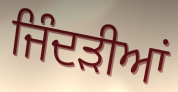
ਜਿੰਦੜੀਆਂ